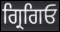
ਗ੍ਰਿਗਿਓ